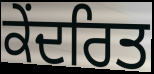
ਕੇਂਦਰਿਤ